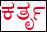
ಕರ್ತೃ